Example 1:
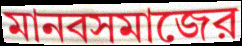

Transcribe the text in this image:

মানবসমাজের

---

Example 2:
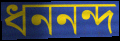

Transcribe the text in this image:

ধননন্দ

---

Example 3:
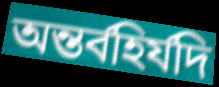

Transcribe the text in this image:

অন্তর্বহির্যদি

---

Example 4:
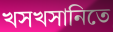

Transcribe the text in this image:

খসখসানিতে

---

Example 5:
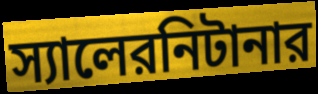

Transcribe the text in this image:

স্যালেরনিটানার